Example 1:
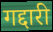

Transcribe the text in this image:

गद्दारी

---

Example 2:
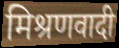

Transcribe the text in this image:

मिश्रणवादी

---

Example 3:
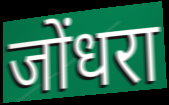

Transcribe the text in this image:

जोंधरा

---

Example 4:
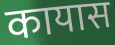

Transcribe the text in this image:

कायास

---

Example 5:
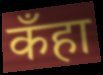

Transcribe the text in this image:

कँहा